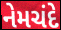
નેમચંદે